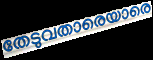
തേടുവതാരെയാരെ